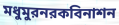
মধুমুরনরকবিনাশন